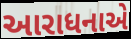
આરાધનાએ